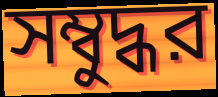
সম্বুদ্ধর